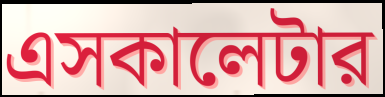
এসকালেটার